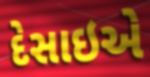
દેસાઇએ